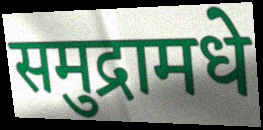
समुद्रामधे